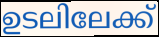
ഉടലിലേക്ക്